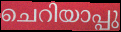
ചെറിയാപ്പു